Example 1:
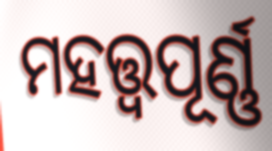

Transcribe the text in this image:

ମହତ୍ତ୍ୱପୂର୍ଣ୍ଣ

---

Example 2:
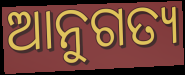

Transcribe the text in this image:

ଆନୁଗତ୍ୟ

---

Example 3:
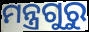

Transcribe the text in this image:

ମନ୍ତ୍ରଗୁରୁ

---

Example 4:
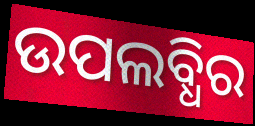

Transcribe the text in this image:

ଉପଲବ୍ଧିର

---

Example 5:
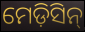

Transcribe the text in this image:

ମେଡ଼ିସିନ୍